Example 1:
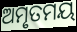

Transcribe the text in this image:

ଅମୃତମୟ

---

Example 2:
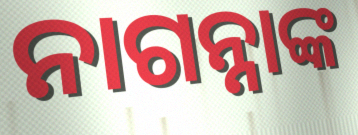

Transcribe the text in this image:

ନାଗନ୍ନାଙ୍କ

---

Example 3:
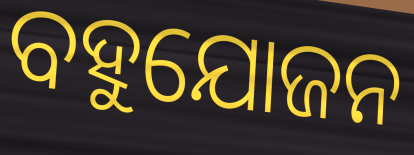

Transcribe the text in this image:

ବହୁଯୋଜନ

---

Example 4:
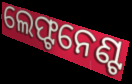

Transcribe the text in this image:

ଲେଫ୍ଟନେଣ୍ଟ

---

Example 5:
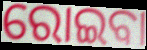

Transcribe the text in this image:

ରୋଇବା